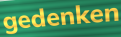
gedenken